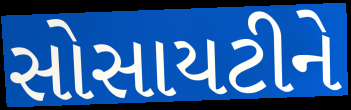
સોસાયટીને